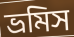
ভ্রমিস